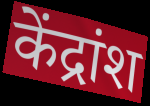
केंद्रांश